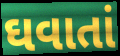
ઘવાતાં